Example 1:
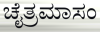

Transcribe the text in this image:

ಚೈತ್ರಮಾಸಂ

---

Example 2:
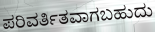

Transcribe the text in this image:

ಪರಿವರ್ತಿತವಾಗಬಹುದು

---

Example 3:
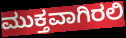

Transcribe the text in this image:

ಮುಕ್ತವಾಗಿರಲಿ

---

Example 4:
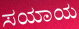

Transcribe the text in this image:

ಸಯಾಯ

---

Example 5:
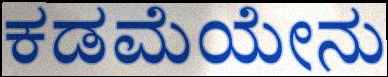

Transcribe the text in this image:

ಕಡಮೆಯೇನು